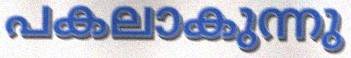
പകലാകുന്നു